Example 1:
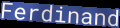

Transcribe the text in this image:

Ferdinand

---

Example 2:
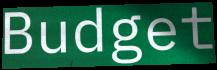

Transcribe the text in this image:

Budget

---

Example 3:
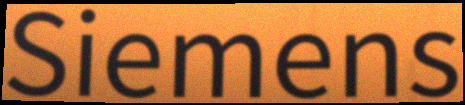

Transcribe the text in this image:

Siemens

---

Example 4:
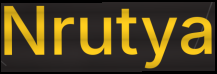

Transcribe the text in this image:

Nrutya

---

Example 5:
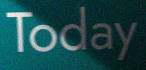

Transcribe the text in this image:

Today